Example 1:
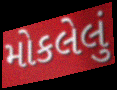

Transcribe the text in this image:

મોકલેલું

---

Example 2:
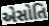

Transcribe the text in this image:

એસોતિ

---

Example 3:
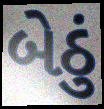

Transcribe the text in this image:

બેઠું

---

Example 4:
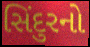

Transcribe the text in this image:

સિંદુરનો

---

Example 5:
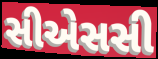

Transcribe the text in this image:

સીએસસી